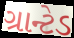
ગ્રાન્ટેડ